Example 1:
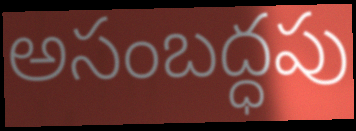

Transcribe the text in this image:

అసంబద్ధపు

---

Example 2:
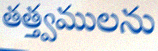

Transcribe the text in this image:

తత్త్వములను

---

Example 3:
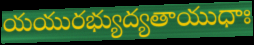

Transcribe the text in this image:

యయురభ్యుద్యతాయుధాః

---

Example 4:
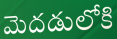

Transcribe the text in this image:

మెదడులోకి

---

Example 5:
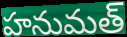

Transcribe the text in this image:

హనుమత్